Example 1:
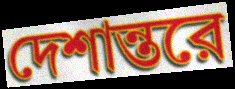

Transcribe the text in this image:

দেশান্তরে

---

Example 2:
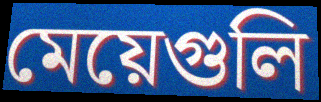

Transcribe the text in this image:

মেয়েগুলি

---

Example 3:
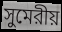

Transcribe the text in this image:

সুমেরীয়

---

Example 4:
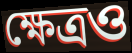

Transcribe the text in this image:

ক্ষেত্রও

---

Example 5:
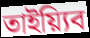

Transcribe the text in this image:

তাইয়্যিব